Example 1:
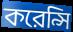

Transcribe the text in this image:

করেন্সি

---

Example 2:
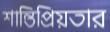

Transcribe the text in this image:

শান্তিপ্রিয়তার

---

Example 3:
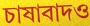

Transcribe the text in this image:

চাষাবাদও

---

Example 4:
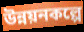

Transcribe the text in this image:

উন্নয়নকল্পে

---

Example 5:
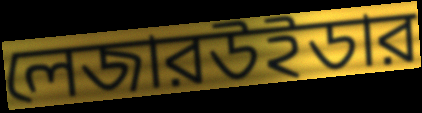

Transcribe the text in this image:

লেজারউইডার